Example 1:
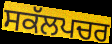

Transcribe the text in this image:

ਸਕੱਲਪਚਰ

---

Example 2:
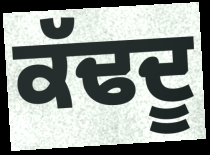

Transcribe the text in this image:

ਕੱਢਦੂ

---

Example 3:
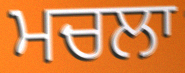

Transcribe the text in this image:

ਮਚਲਾ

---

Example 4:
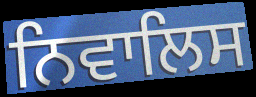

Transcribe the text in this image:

ਨਿਵਾਲਿਸ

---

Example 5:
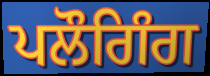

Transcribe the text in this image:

ਪਲੌਗਿੰਗ